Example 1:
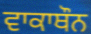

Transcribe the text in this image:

ਵਾਕਾਥੌਨ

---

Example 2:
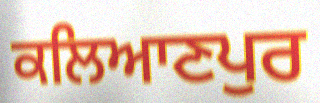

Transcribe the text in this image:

ਕਲਿਆਣਪੁਰ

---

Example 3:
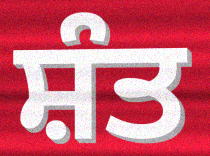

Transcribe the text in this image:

ਸ਼ੰਤ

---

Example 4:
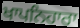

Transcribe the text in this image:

ਖਾਪਨਿਹਾਰਾ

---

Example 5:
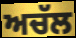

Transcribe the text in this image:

ਅਚੱਲ